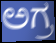
ಅಗ್ರ